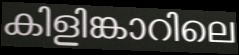
കിളിങ്കാറിലെ